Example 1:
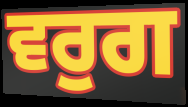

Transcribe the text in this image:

ਵਰੁਗ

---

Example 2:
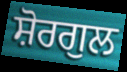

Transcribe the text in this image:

ਸ਼ੋਰਗੁਲ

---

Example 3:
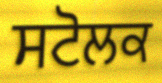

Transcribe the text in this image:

ਸਟੋਲਕ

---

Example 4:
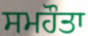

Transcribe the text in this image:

ਸਮਹੌਤਾ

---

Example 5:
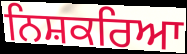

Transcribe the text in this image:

ਨਿਸ਼ਕਰਿਆ